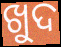
ଖୁଦ